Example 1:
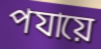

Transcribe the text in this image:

পযায়ে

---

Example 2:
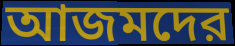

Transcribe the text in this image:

আজমদের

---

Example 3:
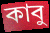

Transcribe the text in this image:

কাবু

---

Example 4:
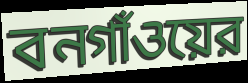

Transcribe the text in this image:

বনগাঁওয়ের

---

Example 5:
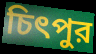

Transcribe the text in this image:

চিৎপুর